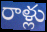
రాళ్లు